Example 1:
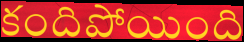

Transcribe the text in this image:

కందిపోయింది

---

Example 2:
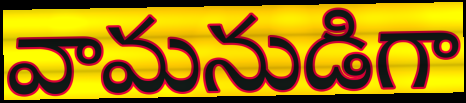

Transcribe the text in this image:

వామనుడిగా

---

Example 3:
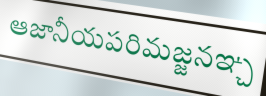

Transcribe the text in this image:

ఆజానీయపరిమజ్జనఞ్చ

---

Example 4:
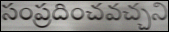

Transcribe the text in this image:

సంప్రదించవచ్చని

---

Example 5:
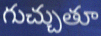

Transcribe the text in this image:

గుచ్చుతూ